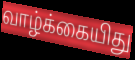
வாழ்க்கையிது